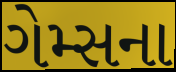
ગેમ્સના